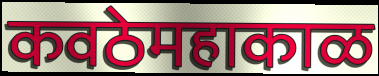
कवठेमहाकाळ